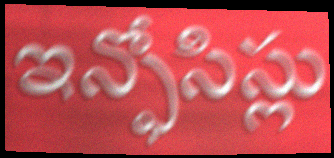
ఇన్ఫోసిస్లు